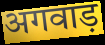
अगवाड़